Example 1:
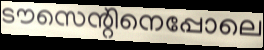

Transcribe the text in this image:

ടൗസെന്റിനെപ്പോലെ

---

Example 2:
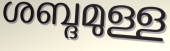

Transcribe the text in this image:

ശബ്ദമുള്ള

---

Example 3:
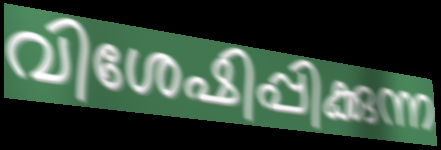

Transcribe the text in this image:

വിശേഷിപ്പിക്കുന്ന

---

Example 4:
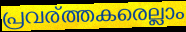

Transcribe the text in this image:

പ്രവര്ത്തകരെല്ലാം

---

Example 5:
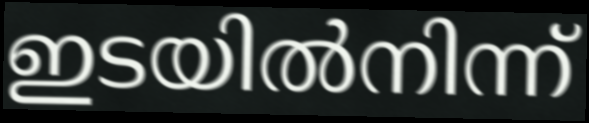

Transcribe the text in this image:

ഇടയിൽനിന്ന്